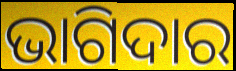
ଭାଗିଦାର